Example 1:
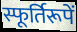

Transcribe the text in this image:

स्फूर्तिरूपें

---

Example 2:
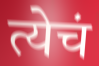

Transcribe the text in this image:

त्येचं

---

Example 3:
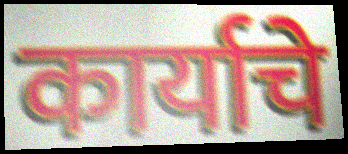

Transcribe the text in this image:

कार्याचे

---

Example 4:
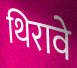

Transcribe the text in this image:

थिरावे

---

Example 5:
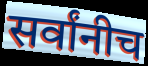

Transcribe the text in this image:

सर्वांनीच